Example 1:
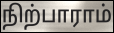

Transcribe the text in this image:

நிற்பாராம்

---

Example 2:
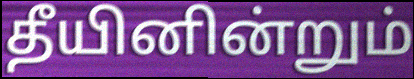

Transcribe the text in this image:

தீயினின்றும்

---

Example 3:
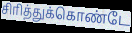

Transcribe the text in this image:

சிரித்துக்கொண்டே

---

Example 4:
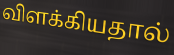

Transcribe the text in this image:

விளக்கியதால்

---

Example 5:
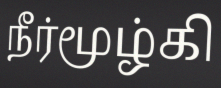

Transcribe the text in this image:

நீர்மூழ்கி